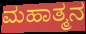
ಮಹಾತ್ಮನ